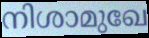
നിശാമുഖേ